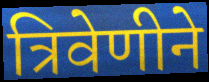
त्रिवेणीने